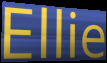
Ellie